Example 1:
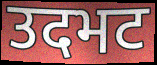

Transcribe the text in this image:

उदभट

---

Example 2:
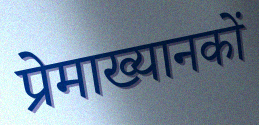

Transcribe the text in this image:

प्रेमाख्यानकों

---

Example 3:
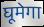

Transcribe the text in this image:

घूमेगा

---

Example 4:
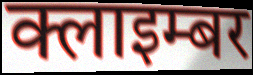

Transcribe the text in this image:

क्लाइम्बर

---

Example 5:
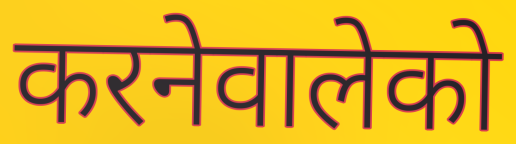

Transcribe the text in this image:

करनेवालेको